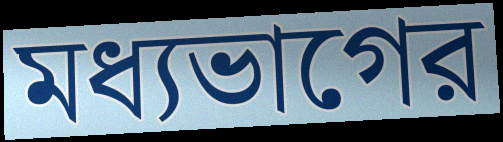
মধ্যভাগের